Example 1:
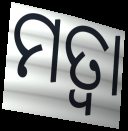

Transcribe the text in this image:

ମତ୍ୱା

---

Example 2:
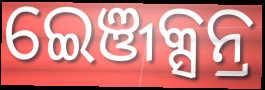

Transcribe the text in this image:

ଇେଞ୍ଜକ୍ସନ୍ର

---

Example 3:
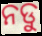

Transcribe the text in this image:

ନଡୁ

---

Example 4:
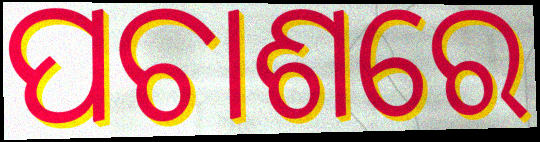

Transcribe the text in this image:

ପଚାଶରେ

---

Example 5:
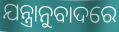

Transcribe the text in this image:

ଯନ୍ତ୍ରାନୁବାଦରେ